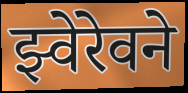
झ्वेरेवने